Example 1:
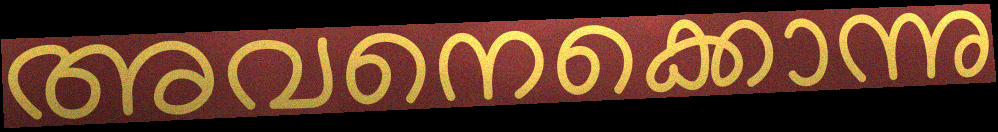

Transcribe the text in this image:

അവനെക്കൊന്നു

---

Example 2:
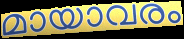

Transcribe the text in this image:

മായാവരം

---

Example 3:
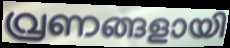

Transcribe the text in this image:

വ്രണങ്ങളായി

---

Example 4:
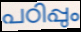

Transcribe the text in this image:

പഠിപ്പും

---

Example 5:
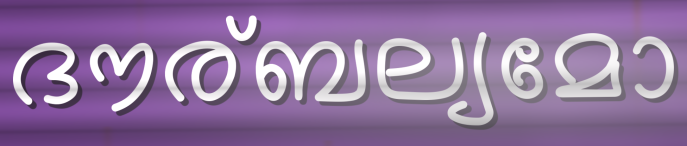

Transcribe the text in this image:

ദൗര്ബല്യമോ